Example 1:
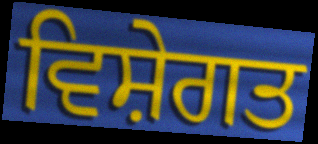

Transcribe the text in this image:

ਵਿਸ਼ੇਗਤ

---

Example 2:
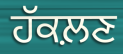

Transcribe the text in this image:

ਹੱਕਲ਼ਣ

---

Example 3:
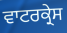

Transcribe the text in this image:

ਵਾਟਰਕ੍ਰੇਸ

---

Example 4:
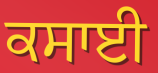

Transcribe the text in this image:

ਕਸਾਈ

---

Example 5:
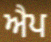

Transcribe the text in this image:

ਐਪ